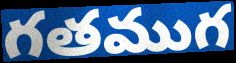
గతముగ